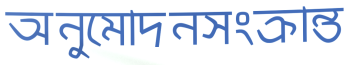
অনুমোদনসংক্রান্ত